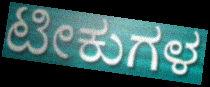
ಟೀಕುಗಳ